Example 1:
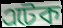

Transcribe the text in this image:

এটেক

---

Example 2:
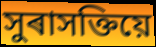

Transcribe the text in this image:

সুৰাসক্তিয়ে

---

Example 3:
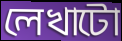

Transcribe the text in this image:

লেখাটো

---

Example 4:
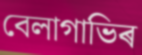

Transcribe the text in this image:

বেলাগাভিৰ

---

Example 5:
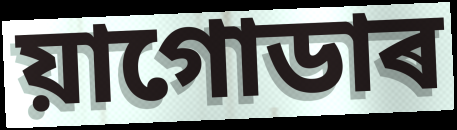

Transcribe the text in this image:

য়াগোডাৰ